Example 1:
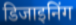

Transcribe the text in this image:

डिजाइनिंग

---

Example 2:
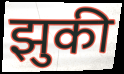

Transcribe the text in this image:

झुकी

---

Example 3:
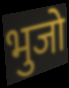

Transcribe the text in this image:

भुजो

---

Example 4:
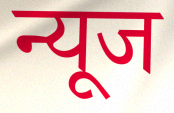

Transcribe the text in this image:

न्यूज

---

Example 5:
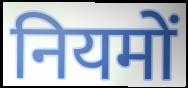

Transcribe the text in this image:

नियमों